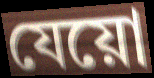
যেয়ো